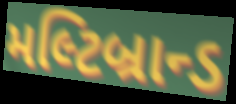
મલ્ટિબ્રાન્ડ